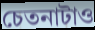
চেতনাটাও